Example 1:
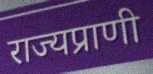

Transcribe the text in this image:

राज्यप्राणी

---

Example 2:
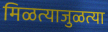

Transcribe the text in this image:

मिळत्याजुळत्या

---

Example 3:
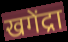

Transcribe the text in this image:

खगेंद्रा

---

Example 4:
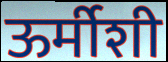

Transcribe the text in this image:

ऊर्मीशी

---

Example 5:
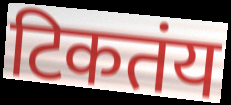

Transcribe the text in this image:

टिकतंय